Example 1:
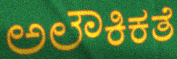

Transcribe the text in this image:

ಅಲೌಕಿಕತೆ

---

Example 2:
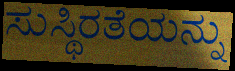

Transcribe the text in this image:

ಸುಸ್ಥಿರತೆಯನ್ನು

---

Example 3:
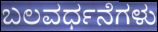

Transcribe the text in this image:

ಬಲವರ್ಧನೆಗಳು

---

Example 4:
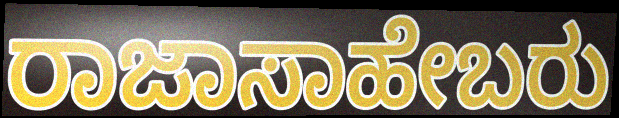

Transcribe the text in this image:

ರಾಜಾಸಾಹೇಬರು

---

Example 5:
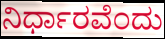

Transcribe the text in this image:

ನಿರ್ಧಾರವೆಂದು